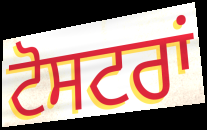
ਟੋਸਟਰਾਂ